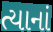
ત્યાનાં